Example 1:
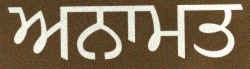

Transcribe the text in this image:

ਅਨਾਮਤ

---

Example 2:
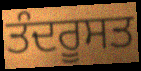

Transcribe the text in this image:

ਤੰਦਰੂਸਤ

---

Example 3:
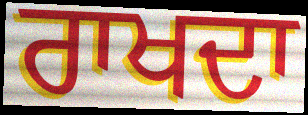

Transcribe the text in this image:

ਰਾਖਦਾ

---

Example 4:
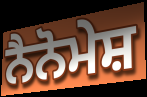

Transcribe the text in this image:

ਨੈਨੋਮੇਸ਼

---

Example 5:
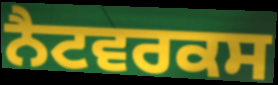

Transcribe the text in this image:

ਨੈਟਵਰਕਸ